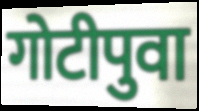
गोटीपुवा